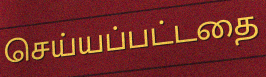
செய்யப்பட்டதை